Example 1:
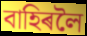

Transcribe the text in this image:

বাহিৰলৈ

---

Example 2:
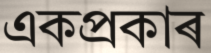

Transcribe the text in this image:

একপ্ৰকাৰ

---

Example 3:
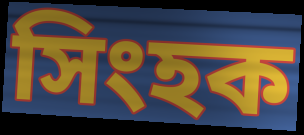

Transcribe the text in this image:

সিংহক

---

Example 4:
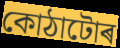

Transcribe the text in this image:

কোঠাটোৰ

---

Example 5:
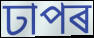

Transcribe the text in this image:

ঢাপৰ